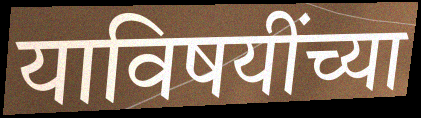
याविषयींच्या